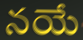
నయే